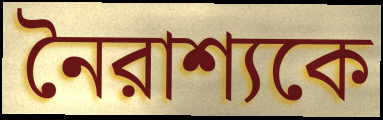
নৈরাশ্যকে